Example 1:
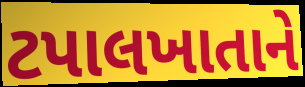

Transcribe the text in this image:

ટપાલખાતાને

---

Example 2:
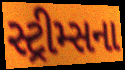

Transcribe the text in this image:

સ્ટ્રીમ્સના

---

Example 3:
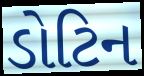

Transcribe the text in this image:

ડોટિન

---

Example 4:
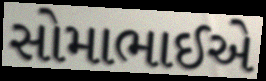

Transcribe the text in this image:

સોમાભાઈએ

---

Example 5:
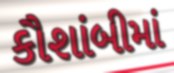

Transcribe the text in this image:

કૌશાંબીમાં